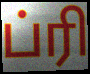
ப்ரி